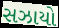
સઝાયો